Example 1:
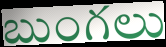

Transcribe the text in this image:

బుంగలు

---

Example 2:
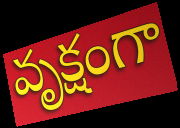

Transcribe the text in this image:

వృక్షంగా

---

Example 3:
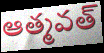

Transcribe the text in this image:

ఆత్మవత్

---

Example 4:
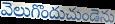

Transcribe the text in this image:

వెలుగొందుచుండెను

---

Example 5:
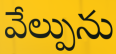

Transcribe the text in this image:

వేల్పును